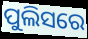
ପୁଲିସରେ